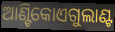
ଆଣ୍ଟିକୋଏଗୁଲାଣ୍ଟ